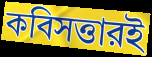
কবিসত্তারই